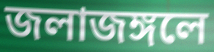
জলাজঙ্গলে